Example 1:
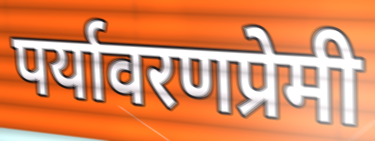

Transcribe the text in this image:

पर्यावरणप्रेमी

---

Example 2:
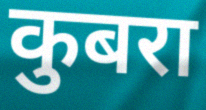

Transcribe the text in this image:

कुबरा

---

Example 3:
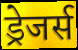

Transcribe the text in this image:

ड्रेजर्स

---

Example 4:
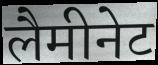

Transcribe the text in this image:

लैमीनेट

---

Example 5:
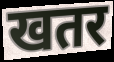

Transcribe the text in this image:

खतर